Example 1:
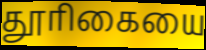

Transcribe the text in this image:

தூரிகையை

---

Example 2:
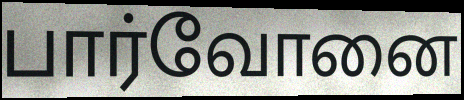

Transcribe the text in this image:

பார்வோனை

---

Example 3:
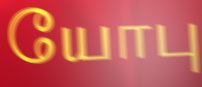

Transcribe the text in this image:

யோபு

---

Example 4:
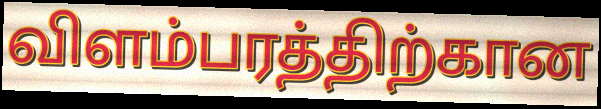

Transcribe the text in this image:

விளம்பரத்திற்கான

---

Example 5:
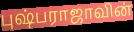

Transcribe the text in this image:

புஷ்பராஜாவின்